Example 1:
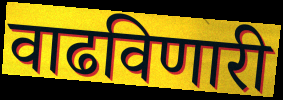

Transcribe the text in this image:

वाढविणारी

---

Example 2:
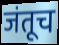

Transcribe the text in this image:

जंतूच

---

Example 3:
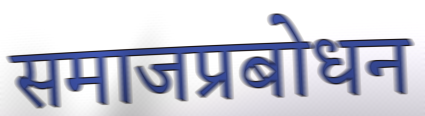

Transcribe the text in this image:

समाजप्रबोधन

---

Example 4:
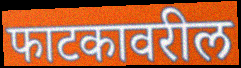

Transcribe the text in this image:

फाटकावरील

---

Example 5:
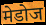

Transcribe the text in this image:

मेडोज